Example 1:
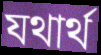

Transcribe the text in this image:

যথাৰ্থ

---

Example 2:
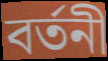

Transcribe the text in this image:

বৰ্তনী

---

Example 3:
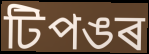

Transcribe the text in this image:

টিপঙৰ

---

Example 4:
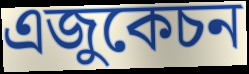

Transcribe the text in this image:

এজুকেচন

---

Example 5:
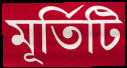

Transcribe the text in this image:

মূৰ্তিটি